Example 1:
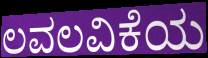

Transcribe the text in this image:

ಲವಲವಿಕೆಯ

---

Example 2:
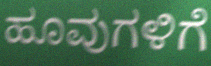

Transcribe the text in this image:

ಹೂವುಗಳಿಗೆ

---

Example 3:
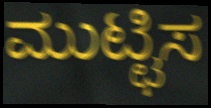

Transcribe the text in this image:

ಮುಟ್ಟಿಸ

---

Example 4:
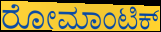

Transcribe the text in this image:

ರೋಮಾಂಟಿಕ್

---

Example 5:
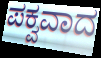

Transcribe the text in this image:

ಪಕ್ವವಾದ